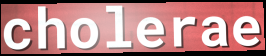
cholerae